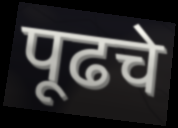
पूढचे